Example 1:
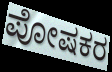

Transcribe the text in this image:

ಪೋಷಕರ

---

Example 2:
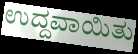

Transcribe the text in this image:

ಉದ್ದವಾಯಿತು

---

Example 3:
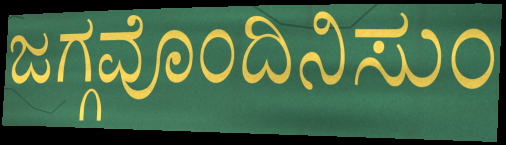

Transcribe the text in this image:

ಜಗ್ಗವೊಂದಿನಿಸುಂ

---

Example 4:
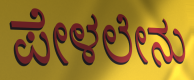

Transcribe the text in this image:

ಪೇಳಲೇನು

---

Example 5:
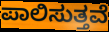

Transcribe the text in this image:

ಪಾಲಿಸುತ್ತವೆ